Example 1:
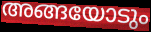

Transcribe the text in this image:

അങ്ങയോടും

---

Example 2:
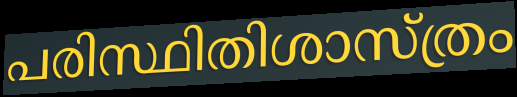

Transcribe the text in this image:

പരിസ്ഥിതിശാസ്ത്രം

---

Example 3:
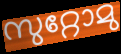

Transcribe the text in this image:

സുറ്റോമു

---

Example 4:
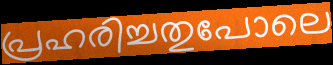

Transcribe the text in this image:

പ്രഹരിച്ചതുപോലെ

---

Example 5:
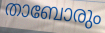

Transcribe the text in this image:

താബോരും